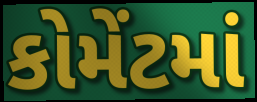
કોમેંટમાં